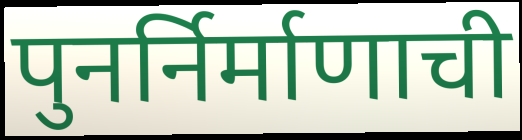
पुनर्निर्माणाची